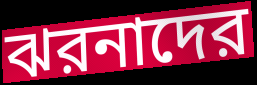
ঝরনাদের